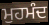
ਮੁਹਮੰਦ